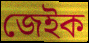
জেইক